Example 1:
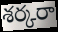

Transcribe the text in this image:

శర్కరా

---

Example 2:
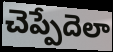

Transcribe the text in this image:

చెప్పేదెలా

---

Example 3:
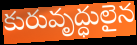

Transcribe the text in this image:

కురువృద్ధులైన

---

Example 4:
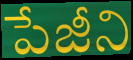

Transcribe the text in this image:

పేజీని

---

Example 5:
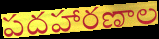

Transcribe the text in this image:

పదహారణాల